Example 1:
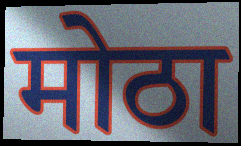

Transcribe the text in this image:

मोठा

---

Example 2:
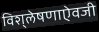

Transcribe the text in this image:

विश्लेषणाऐवजी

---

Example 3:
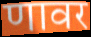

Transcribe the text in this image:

णावर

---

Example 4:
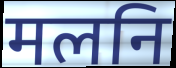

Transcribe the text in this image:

मलनि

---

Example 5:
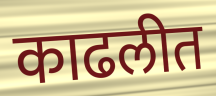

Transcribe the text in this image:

काढलीत